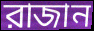
রাজান